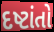
દષ્ટાંતો